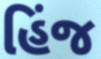
હિંજ